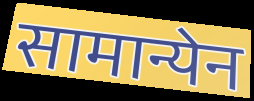
सामान्येन